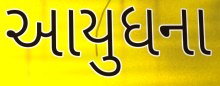
આયુધના